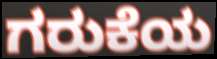
ಗರುಕೆಯ